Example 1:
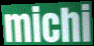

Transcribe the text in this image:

michi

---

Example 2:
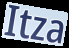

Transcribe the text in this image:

Itza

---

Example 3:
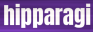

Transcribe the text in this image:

hipparagi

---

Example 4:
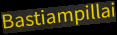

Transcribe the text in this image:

Bastiampillai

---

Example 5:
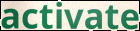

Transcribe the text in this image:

activate